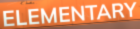
ELEMENTARY